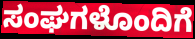
ಸಂಘಗಳೊಂದಿಗೆ